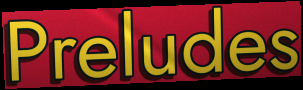
Preludes